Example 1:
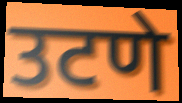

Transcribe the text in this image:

उटणे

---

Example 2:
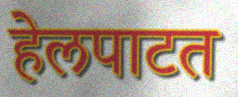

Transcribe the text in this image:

हेलपाटत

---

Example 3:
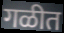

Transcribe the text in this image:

गळीत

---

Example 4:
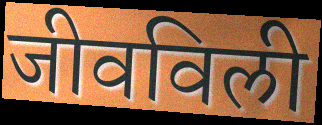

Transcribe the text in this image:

जीवविली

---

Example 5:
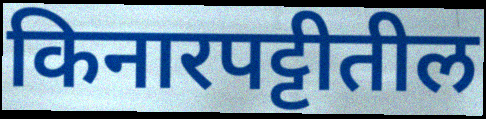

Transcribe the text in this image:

किनारपट्टीतील